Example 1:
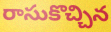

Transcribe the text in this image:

రాసుకొచ్చిన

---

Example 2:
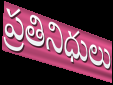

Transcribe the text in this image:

ప్రతినిధులు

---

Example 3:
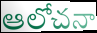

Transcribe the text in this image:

ఆలోచనా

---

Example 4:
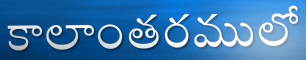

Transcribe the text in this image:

కాలాంతరములో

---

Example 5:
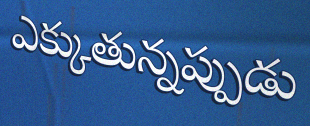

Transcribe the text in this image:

ఎక్కుతున్నప్పుడు